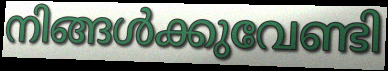
നിങ്ങൾക്കുവേണ്ടി